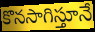
కొనసాగిస్తూనే